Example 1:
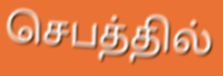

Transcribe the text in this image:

செபத்தில்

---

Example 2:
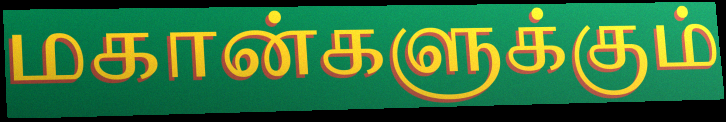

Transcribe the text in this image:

மகான்களுக்கும்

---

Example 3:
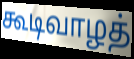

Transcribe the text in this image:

கூடிவாழத்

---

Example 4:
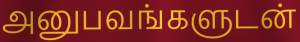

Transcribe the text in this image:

அனுபவங்களுடன்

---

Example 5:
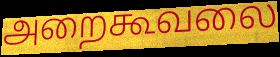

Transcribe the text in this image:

அறைகூவலை